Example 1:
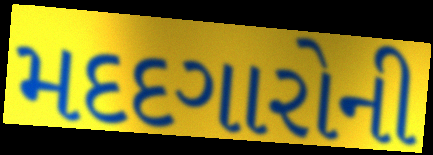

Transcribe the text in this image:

મદદગારોની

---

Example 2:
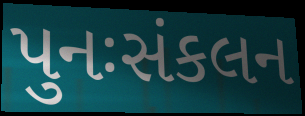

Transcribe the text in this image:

પુનઃસંકલન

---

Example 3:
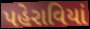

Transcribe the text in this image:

પહેરાવિયાં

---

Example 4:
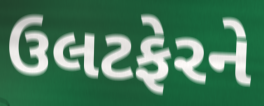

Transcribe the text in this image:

ઉલટફેરને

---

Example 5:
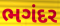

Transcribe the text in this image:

ભગંદર